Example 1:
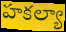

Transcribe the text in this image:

హకల్యా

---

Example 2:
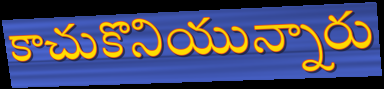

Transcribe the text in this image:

కాచుకొనియున్నారు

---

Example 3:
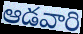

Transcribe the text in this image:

ఆడవారి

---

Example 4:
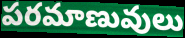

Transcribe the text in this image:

పరమాణువులు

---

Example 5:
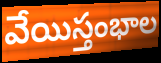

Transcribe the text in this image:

వేయిస్తంభాల